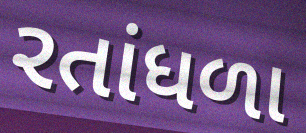
રતાંધળા